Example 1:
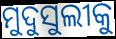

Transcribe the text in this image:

ମୁଦୁସୁଲୀକୁ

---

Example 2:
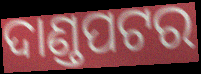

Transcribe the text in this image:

ଦାଣ୍ଡପଟର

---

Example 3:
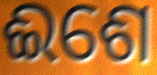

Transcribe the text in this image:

ଈଶେ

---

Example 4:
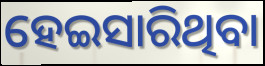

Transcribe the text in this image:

ହେଇସାରିଥିବା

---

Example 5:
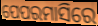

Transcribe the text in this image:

ପେପରମାସିରେ